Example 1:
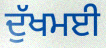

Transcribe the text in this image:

ਦੁੱਖਮਈ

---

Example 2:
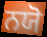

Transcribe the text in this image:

ਨਯੋ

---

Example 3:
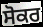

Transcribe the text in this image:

ਸੋਕਰ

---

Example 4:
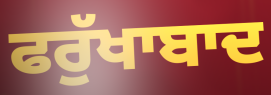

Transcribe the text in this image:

ਫਰੁੱਖਾਬਾਦ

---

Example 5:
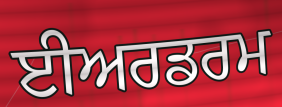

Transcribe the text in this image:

ਈਅਰਡਰਮ